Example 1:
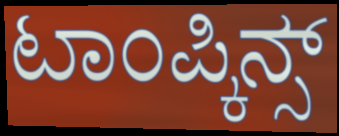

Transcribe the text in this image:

ಟಾಂಪ್ಕಿನ್ಸ್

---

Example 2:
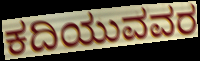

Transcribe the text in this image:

ಕದಿಯುವವರ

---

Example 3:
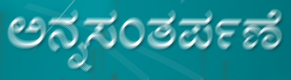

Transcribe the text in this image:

ಅನ್ನಸಂತರ್ಪಣೆ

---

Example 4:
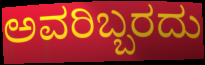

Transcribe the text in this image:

ಅವರಿಬ್ಬರದು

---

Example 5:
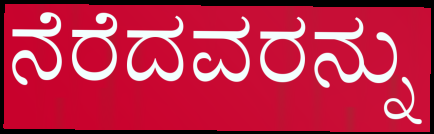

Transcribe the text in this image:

ನೆರೆದವರನ್ನು